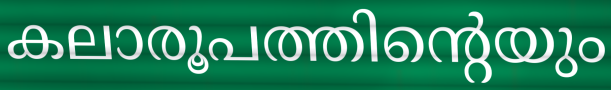
കലാരൂപത്തിന്റെയും